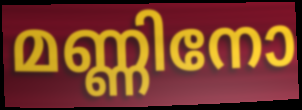
മണ്ണിനോ